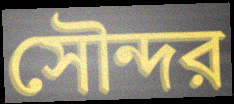
সৌন্দর